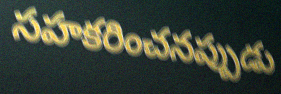
సహకరించనప్పుడు